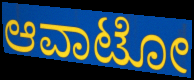
ಆವಾಟೋ